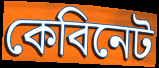
কেবিনেট